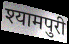
श्यामपुरी